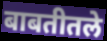
बाबतीतले